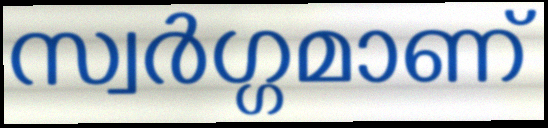
സ്വർഗ്ഗമാണ്